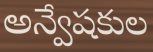
అన్వేషకుల